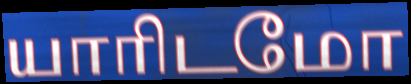
யாரிடமோ